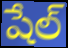
షేల్